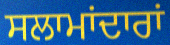
ਸਲਾਮਾਂਦਾਰਾਂ